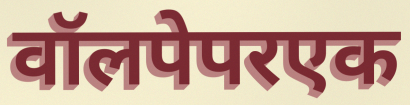
वॉलपेपरएक